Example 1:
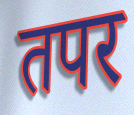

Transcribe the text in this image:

तपर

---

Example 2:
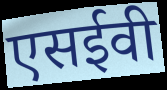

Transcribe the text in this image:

एसईवी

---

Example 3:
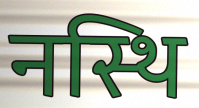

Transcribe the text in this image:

नस्थि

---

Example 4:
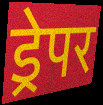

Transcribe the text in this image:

ड्रेपर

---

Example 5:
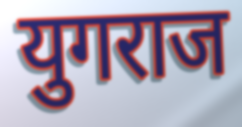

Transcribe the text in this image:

युगराज